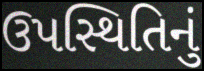
ઉપસ્થિતિનું